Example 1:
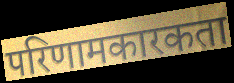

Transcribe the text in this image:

परिणामकारकता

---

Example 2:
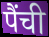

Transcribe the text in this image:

पैंची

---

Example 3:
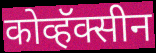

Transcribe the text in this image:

कोव्हॅक्सीन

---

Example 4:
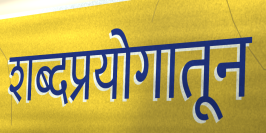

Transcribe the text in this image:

शब्दप्रयोगातून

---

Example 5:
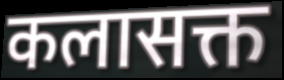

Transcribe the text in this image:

कलासक्त